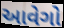
આવેગો